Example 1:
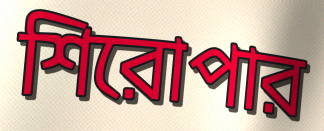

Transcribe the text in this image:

শিরোপার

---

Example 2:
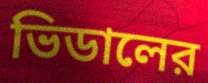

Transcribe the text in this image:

ভিডালের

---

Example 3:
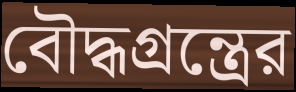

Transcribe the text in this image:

বৌদ্ধগ্রন্ত্রের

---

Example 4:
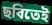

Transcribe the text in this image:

ছবিতেই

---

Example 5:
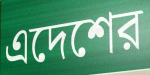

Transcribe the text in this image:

এদেশের